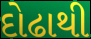
દોઢાથી